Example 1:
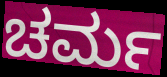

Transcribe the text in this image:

ಚರ್ಮ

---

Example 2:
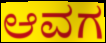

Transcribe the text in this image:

ಆವಗ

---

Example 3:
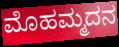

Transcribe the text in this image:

ಮೊಹಮ್ಮದನ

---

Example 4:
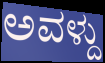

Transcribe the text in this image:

ಅವಳ್ದು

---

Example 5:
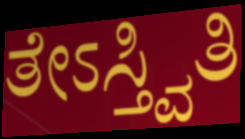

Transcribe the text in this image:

ತೇಽಸ್ತ್ವಿತಿ